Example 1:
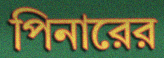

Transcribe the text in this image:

পিনারের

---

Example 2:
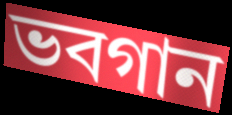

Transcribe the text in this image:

ভবগান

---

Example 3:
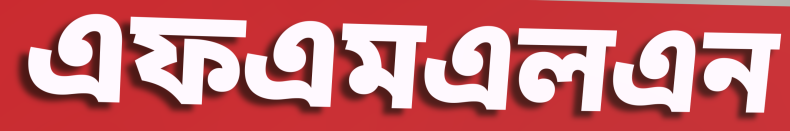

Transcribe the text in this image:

এফএমএলএন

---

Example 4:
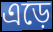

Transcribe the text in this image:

এড়ে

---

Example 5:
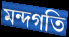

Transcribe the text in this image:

মন্দগতি